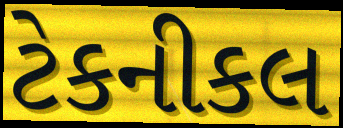
ટેકનીકલ